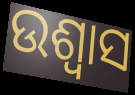
ଉଶ୍ୱାସ